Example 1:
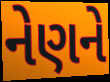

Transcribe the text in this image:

નેણને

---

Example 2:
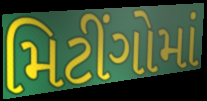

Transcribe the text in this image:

મિટીંગોમાં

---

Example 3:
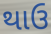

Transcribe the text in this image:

થાઉ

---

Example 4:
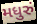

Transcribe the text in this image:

મધુરું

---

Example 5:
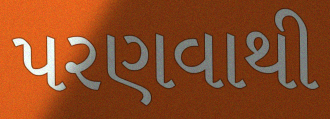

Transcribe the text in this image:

પરણવાથી